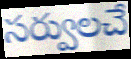
సర్వులచే